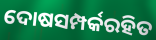
ଦୋଷସମ୍ପର୍କରହିତ